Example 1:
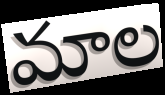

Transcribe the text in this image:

మాల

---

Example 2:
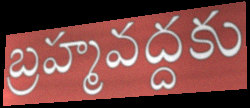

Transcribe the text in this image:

బ్రహ్మవద్దకు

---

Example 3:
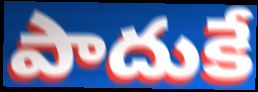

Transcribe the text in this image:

పాదుకే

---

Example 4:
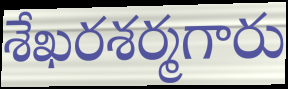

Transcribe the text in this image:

శేఖరశర్మగారు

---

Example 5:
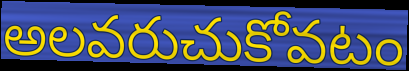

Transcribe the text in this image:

అలవరుచుకోవటం